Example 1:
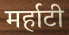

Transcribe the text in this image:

मर्हाटी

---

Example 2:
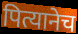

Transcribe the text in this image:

पित्यानेच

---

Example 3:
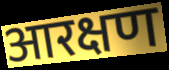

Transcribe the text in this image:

आरक्षण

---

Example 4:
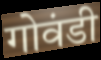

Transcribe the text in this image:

गोवंडी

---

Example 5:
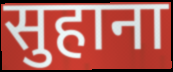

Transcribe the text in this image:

सुहाना